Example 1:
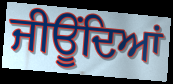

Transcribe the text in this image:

ਜੀਊਂਦਿਆਂ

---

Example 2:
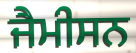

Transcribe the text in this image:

ਜੈਮੀਸਨ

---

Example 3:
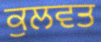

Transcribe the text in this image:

ਕੁਲਵਤ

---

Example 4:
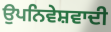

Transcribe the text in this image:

ਉਪਨਿਵੇਸ਼ਵਾਦੀ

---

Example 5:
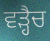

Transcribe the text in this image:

ਵੜ੍ਹੈਚ